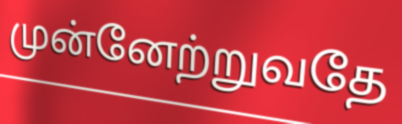
முன்னேற்றுவதே